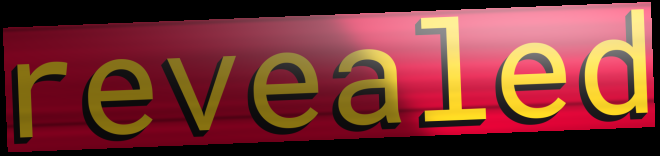
revealed